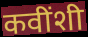
कवींशी